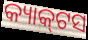
କ୍ୟାକ୍‌ଟସ